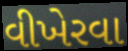
વીખેરવા